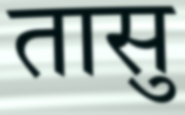
तासु